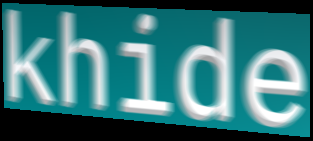
khide